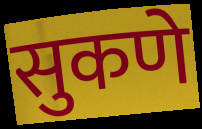
सुकणे